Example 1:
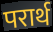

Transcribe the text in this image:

परार्थ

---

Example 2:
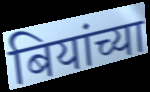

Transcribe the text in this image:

बियांच्या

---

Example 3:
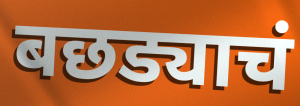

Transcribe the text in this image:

बछड्याचं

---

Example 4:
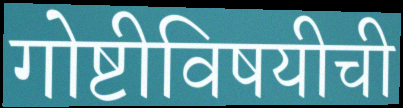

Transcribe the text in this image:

गोष्टीविषयीची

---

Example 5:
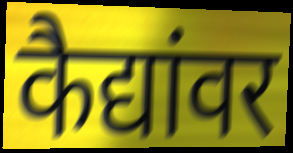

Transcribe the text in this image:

कैद्यांवर